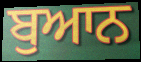
ਬੁਆਨ